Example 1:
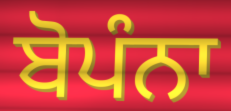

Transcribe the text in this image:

ਬੋਪੰਨਾ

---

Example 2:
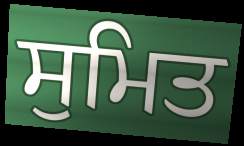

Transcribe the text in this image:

ਸੁਮਿਤ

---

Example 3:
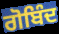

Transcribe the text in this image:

ਗੋਬਿੰਦ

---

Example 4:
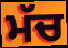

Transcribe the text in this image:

ਮੱਚ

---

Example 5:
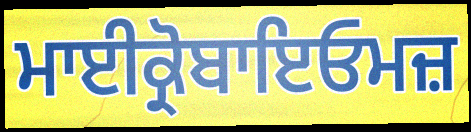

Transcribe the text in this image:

ਮਾਈਕ੍ਰੋਬਾਇਓਮਜ਼